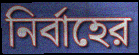
নির্বাহের